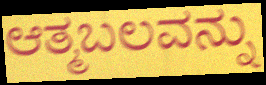
ಆತ್ಮಬಲವನ್ನು